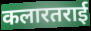
कलारतराई